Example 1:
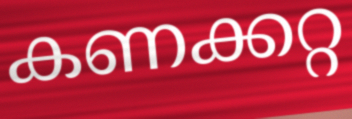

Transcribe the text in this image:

കണക്കറ്റ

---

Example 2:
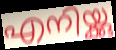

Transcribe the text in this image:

എനിയ്ക്കു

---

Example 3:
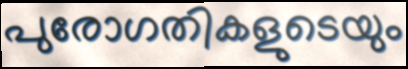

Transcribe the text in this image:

പുരോഗതികളുടെയും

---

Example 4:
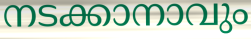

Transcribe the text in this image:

നടക്കാനാവും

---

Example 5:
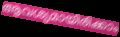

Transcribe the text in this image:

ആവശ്യമായിരിക്കാം